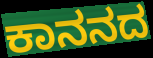
ಕಾನನದ